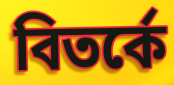
বিতর্কে